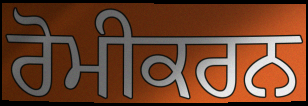
ਰੋਮੀਕਰਨ